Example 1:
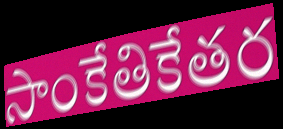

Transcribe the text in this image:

సాంకేతికేతర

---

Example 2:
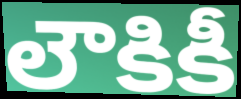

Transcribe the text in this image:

లౌకికీ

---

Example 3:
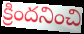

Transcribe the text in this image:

క్రిందనించి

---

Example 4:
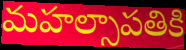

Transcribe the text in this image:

మహల్సాపతికి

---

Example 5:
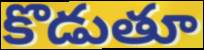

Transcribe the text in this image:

కొడుతూ